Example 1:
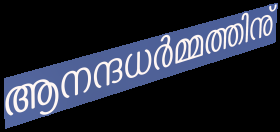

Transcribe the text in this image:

ആനന്ദധർമ്മത്തിനു്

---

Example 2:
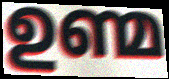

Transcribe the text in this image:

ഉണ്മ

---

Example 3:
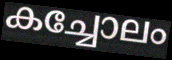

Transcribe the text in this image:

കച്ചോലം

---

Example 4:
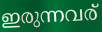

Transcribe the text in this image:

ഇരുന്നവര്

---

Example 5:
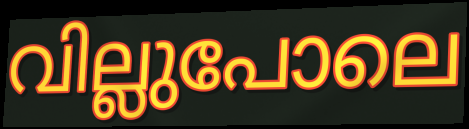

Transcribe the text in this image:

വില്ലുപോലെ